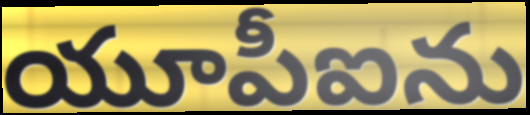
యూపీఐను